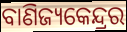
ବାଣିଜ୍ୟକେନ୍ଦ୍ରର